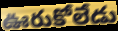
ఊరుకోలేడు